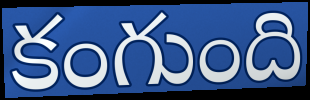
కంగుంది